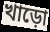
খাড়ো